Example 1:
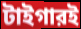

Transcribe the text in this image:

টাইগারই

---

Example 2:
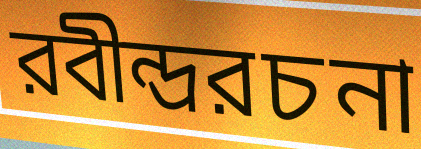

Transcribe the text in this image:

রবীন্দ্ররচনা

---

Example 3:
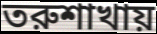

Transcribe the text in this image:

তরুশাখায়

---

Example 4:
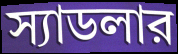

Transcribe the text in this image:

স্যাডলার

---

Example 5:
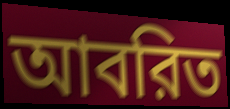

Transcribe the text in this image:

আবরিত